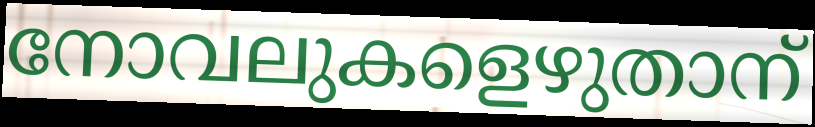
നോവലുകളെഴുതാന്